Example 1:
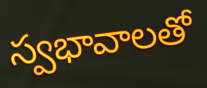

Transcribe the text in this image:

స్వభావాలతో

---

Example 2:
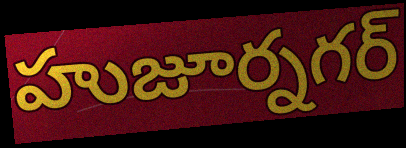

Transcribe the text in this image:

హుజూర్నగర్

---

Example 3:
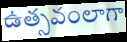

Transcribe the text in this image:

ఉత్సవంలాగా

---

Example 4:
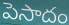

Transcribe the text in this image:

పెసాదం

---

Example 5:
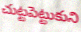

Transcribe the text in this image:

చుట్టపెట్టుకుని